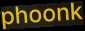
phoonk